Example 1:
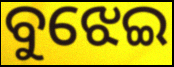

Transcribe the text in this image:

ବୁଝେଇ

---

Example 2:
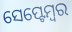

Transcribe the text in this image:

ସେପ୍ଟେମ୍ୱର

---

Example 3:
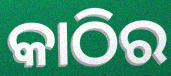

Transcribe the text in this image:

କାଠିର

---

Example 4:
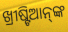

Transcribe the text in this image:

ଖ୍ରୀଷ୍ଟିଆନ୍‌ଙ୍କ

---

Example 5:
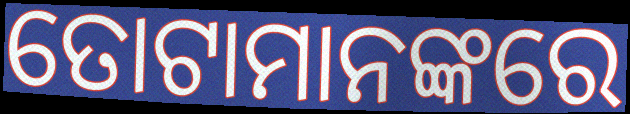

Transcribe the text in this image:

ତୋଟାମାନଙ୍କରେ